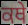
ਕਥੇ